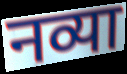
नव्या